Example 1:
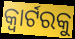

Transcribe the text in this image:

କ୍ୱାର୍ଟରକୁ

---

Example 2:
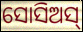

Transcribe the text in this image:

ସୋସିଅସ୍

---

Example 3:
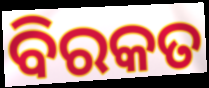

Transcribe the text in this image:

ବିରକତ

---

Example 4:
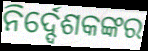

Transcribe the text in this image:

ନିର୍ଦ୍ଦେଶକଙ୍କର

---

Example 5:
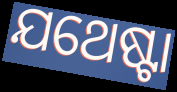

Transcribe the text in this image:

ଯଥେଷ୍ଟା